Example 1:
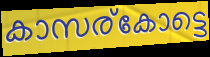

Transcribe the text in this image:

കാസര്കോട്ടെ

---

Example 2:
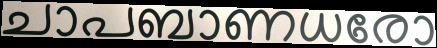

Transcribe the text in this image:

ചാപബാണധരോ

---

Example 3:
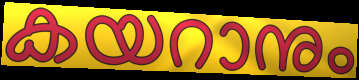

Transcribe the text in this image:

കയറാനും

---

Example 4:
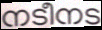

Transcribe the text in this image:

നടീനട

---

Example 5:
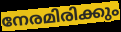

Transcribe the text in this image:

നേരമിരിക്കും